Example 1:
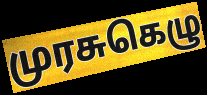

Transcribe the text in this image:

முரசுகெழு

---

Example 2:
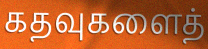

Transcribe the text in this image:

கதவுகளைத்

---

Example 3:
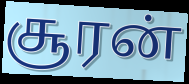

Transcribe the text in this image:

சூரன்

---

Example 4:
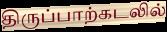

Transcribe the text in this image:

திருப்பாற்கடலில்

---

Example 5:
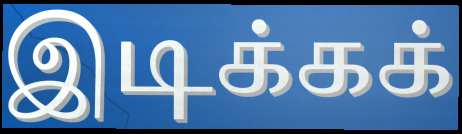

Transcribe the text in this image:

இடிக்கக்